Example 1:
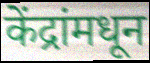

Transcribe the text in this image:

केंद्रांमधून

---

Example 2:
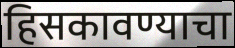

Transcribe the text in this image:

हिसकावण्याचा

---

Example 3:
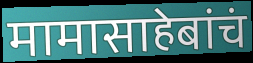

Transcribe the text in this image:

मामासाहेबांचं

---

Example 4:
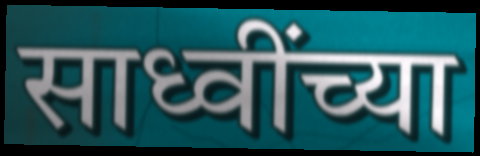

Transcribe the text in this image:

साध्वींच्या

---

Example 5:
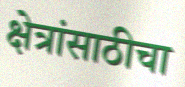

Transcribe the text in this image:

क्षेत्रांसाठीचा